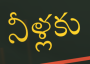
నీళ్లకు